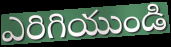
ఎరిగియుండి